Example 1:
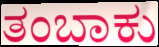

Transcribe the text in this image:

ತಂಬಾಕು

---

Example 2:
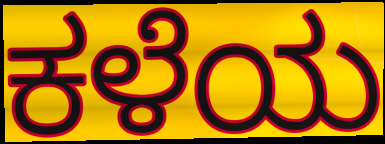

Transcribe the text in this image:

ಕಳೆಯ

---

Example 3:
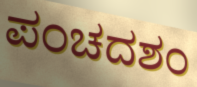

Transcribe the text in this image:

ಪಂಚದಶಂ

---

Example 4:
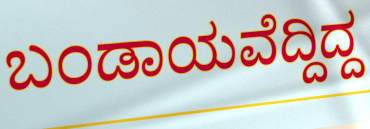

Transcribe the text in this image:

ಬಂಡಾಯವೆದ್ದಿದ್ದ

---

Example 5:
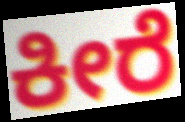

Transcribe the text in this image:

ಕೀರೆ